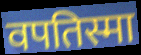
वपतिस्मा